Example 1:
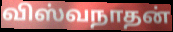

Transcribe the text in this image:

விஸ்வநாதன்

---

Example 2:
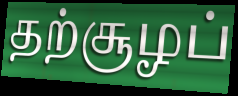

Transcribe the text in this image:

தற்சூழப்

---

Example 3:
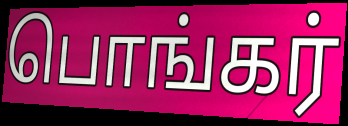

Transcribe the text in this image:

பொங்கர்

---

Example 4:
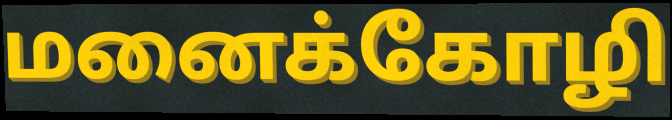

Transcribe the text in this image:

மனைக்கோழி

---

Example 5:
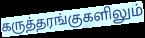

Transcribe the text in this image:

கருத்தரங்குகளிலும்